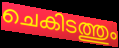
ചെകിടത്തും